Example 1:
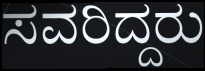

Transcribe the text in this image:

ಸವರಿದ್ದರು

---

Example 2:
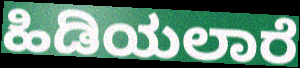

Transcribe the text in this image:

ಹಿಡಿಯಲಾರೆ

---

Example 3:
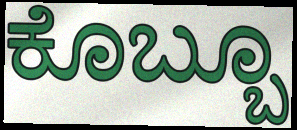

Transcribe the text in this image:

ಕೊಬ್ಬೂ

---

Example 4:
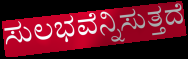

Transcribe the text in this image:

ಸುಲಭವೆನ್ನಿಸುತ್ತದೆ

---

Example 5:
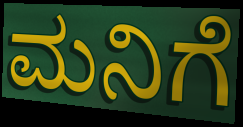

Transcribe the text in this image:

ಮನಿಗೆ